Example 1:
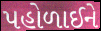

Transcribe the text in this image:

પહોળાઈને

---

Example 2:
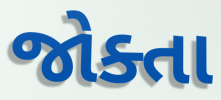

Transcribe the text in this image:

જોક્તા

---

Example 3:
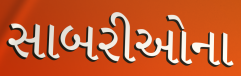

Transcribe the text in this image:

સાબરીઓના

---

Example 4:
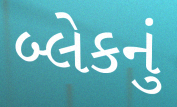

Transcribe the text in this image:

બ્લેકનું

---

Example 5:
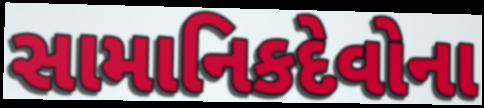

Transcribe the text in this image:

સામાનિકદેવોના